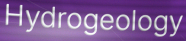
Hydrogeology